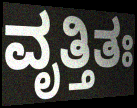
ವೃತ್ತಿತಃ